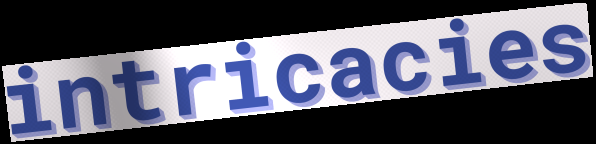
intricacies